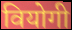
वियोगी